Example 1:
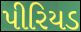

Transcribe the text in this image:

પીરિયડ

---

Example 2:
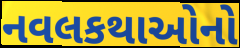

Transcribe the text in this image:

નવલકથાઓનો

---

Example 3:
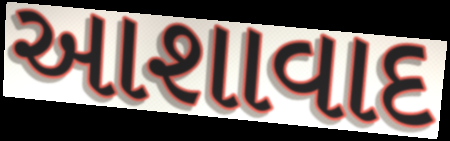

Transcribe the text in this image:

આશાવાદ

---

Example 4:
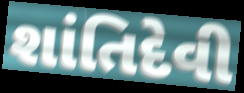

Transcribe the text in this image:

શાંતિદેવી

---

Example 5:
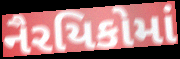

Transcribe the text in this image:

નૈરયિકોમાં